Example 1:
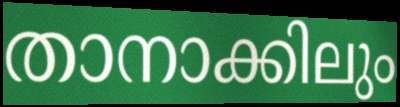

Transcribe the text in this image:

താനാക്കിലും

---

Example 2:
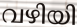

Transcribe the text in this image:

വഴിയി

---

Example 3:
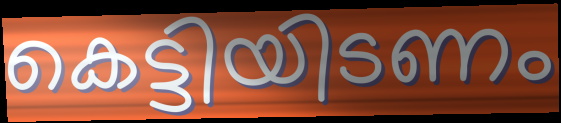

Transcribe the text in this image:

കെട്ടിയിടണം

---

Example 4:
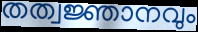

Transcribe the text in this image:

തത്വജ്ഞാനവും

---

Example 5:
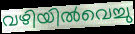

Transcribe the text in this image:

വഴിയിൽവെച്ചു